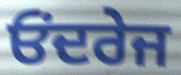
ਓਂਦਰੇਜ